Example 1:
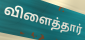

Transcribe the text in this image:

விளைத்தார்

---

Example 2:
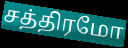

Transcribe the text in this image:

சத்திரமோ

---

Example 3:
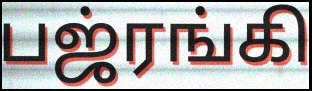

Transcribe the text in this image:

பஜ்ரங்கி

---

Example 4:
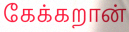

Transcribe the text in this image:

கேக்கறான்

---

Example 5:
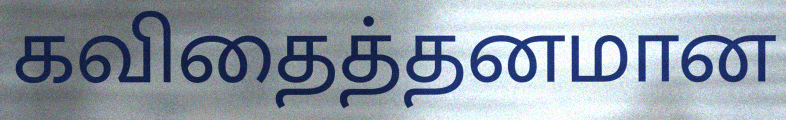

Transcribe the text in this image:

கவிதைத்தனமான